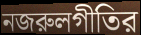
নজরুলগীতির